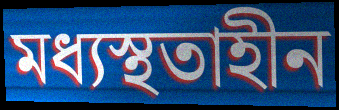
মধ্যস্থতাহীন